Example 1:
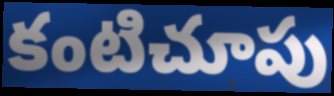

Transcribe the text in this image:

కంటిచూపు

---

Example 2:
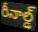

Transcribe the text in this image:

రీనాల్డ్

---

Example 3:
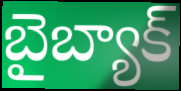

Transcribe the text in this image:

బైబ్యాక్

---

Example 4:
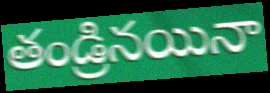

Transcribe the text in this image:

తండ్రినయినా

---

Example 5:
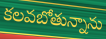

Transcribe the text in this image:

కలవబోతున్నాను